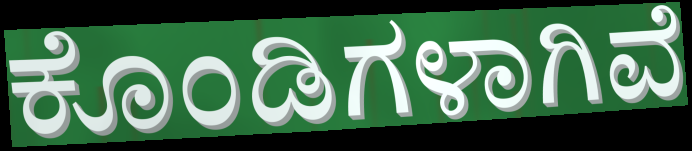
ಕೊಂಡಿಗಳಾಗಿವೆ